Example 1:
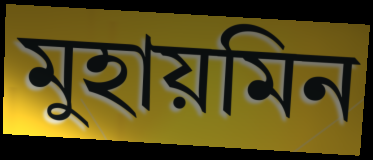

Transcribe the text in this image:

মুহায়মিন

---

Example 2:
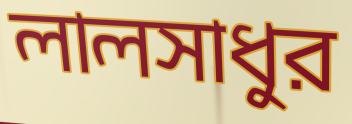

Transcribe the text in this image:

লালসাধুর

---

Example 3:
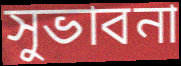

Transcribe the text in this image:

সুভাবনা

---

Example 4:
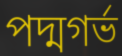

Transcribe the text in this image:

পদ্মগর্ভ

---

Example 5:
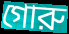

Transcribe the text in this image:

গোরু